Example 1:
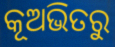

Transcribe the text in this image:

କୂଅଭିତରୁ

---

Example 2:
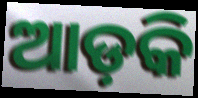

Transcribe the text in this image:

ଆଡ଼କି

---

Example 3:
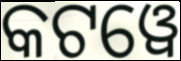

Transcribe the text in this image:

କଟୱେ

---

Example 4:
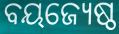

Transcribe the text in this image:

ବୟଜ୍ୟେଷ୍ଠ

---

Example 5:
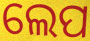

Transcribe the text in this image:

ଲେପ